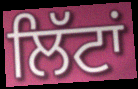
ਲਿੱਟਾਂ